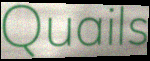
Quails